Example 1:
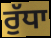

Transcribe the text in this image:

ਰੁੱਧਾ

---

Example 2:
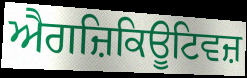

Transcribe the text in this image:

ਐਗਜ਼ਿਕਿਊਟਿਵਜ਼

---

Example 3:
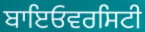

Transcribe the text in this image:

ਬਾਇਓਵਰਸਿਟੀ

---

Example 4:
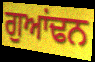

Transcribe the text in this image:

ਗੁਆਂਢਨ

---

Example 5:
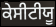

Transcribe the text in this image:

ਕੇਸੀਟੀਯੂ